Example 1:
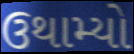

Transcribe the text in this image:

ઉથામ્યો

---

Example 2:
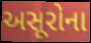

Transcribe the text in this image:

અસૂરોના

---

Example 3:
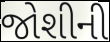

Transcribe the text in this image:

જોશીની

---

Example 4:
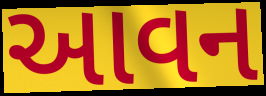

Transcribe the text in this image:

આવન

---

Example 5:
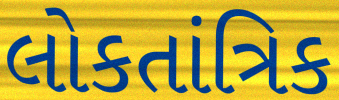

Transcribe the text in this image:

લોકતાંત્રિક